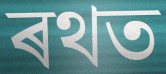
ৰথত